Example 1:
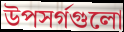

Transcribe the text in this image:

উপসর্গগুলো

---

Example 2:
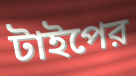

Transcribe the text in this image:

টাইপের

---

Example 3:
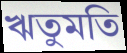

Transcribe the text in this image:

ঋতুমতি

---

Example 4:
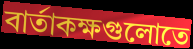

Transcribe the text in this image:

বার্তাকক্ষগুলোতে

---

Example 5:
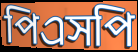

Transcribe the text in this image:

পিএসপি